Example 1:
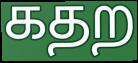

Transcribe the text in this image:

கதற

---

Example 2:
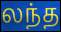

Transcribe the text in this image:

லந்த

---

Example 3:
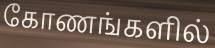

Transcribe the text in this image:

கோணங்களில்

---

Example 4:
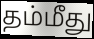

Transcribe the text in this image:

தம்மீது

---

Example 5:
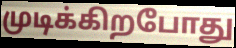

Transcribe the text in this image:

முடிக்கிறபோது